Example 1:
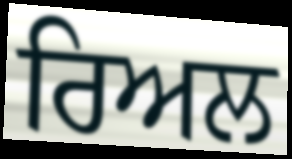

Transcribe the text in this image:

ਰਿਅਲ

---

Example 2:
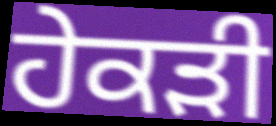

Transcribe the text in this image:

ਹੇਕੜੀ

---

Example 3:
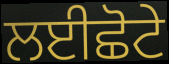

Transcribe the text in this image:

ਲਈਛੋਟੇ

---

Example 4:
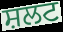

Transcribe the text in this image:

ਸ਼ਲਟ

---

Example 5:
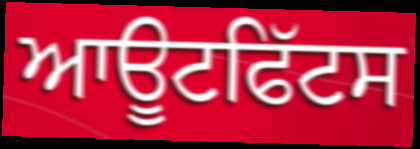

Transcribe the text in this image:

ਆਊਟਫਿੱਟਸ